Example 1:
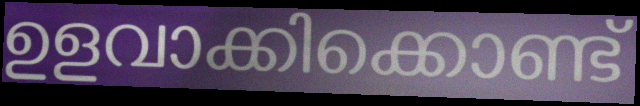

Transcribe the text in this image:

ഉളവാക്കിക്കൊണ്ട്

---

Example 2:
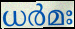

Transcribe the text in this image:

ധർമഃ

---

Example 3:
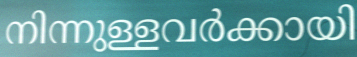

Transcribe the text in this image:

നിന്നുള്ളവർക്കായി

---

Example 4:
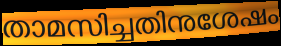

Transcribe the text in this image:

താമസിച്ചതിനുശേഷം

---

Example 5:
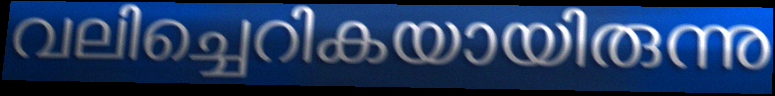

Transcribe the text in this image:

വലിച്ചെറികയായിരുന്നു